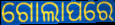
ଗୋଲାପରେ